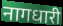
नागधारी